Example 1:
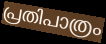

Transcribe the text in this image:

പ്രതിപാത്രം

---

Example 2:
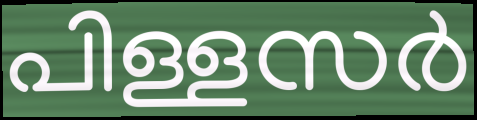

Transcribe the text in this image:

പിള്ളസർ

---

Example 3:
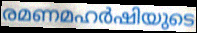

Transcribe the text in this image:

രമണമഹർഷിയുടെ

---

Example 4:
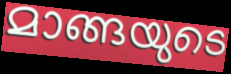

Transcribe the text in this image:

മാങ്ങയുടെ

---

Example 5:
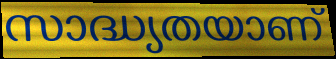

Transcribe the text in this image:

സാദ്ധ്യതയാണ്